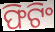
ଫିଟିଂ